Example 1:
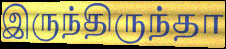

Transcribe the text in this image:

இருந்திருந்தா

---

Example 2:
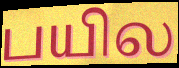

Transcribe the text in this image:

பயில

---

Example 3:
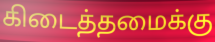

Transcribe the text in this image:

கிடைத்தமைக்கு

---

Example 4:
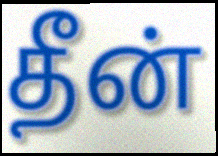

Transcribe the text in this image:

தீன்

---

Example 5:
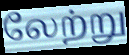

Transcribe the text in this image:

லேற்று